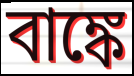
বাঙ্কে